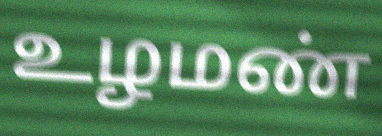
உழமண்